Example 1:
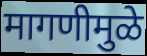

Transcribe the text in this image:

मागणीमुळे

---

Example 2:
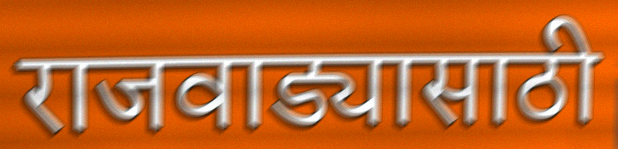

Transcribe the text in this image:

राजवाड्यासाठी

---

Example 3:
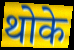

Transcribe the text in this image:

थोके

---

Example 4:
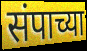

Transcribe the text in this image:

संपाच्या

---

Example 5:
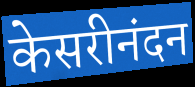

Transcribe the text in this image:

केसरीनंदन